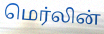
மெர்லின்